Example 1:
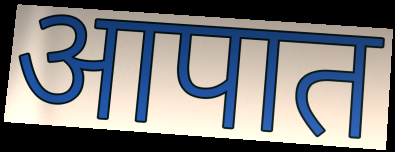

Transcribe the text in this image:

आपात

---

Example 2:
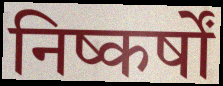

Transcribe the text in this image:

निष्कर्षों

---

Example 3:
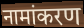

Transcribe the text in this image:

नामांकरण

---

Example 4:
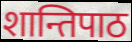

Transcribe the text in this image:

शान्तिपाठ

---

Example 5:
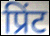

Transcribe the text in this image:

प्रिंट